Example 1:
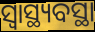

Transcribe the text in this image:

ସ୍ୱାସ୍ଥ୍ୟବସ୍ଥା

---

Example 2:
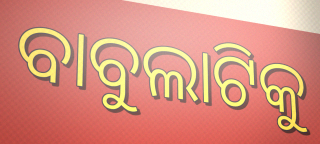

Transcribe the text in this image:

ବାବୁଲାଟିକୁ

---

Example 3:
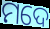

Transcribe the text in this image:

ମଦେ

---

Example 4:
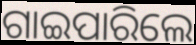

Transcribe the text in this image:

ଗାଇପାରିଲେ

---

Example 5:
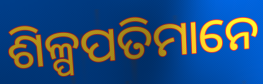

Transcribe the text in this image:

ଶିଳ୍ପପତିମାନେ